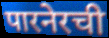
पारनेरची